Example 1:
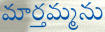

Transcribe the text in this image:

మార్తమ్మను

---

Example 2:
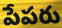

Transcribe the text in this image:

పేపరు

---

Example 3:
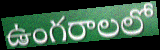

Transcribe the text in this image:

ఉంగరాలలో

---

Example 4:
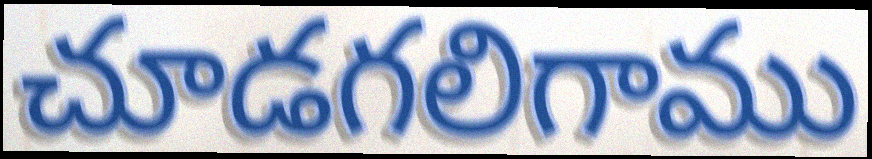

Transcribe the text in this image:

చూడగలిగాము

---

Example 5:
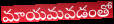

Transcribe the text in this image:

మాయమవడంతో